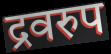
द्रवरुप